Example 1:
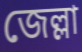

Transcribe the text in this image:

জেল্লা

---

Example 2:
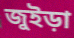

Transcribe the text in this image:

জুইড়া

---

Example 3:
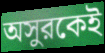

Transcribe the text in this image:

অসুরকেই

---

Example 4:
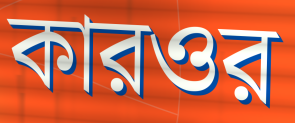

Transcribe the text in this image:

কারওর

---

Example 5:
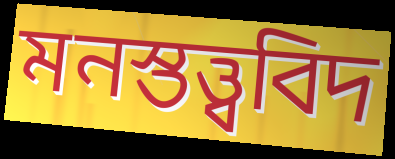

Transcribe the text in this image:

মনস্তত্ত্ববিদ